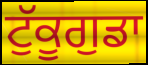
ਟੁੱਕੂਗੁਡਾ